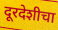
दूरदेशीचा